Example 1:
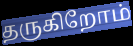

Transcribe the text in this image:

தருகிறோம்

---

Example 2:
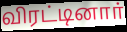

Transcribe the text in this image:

விரட்டினார்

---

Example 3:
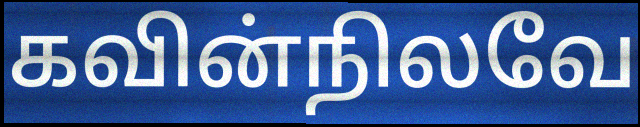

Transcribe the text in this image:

கவின்நிலவே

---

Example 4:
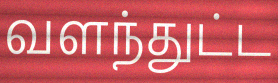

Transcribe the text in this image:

வளந்துட்ட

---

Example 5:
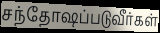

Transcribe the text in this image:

சந்தோஷப்படுவீர்கள்